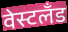
वेस्टलँड